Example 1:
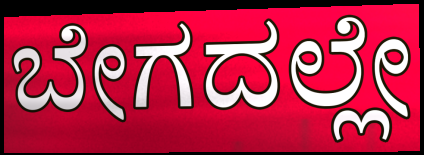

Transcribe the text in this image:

ಬೇಗದಲ್ಲೇ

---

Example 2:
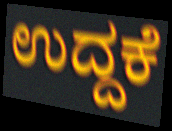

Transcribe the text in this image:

ಉದ್ದಕೆ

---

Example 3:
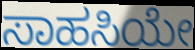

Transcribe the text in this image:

ಸಾಹಸಿಯೇ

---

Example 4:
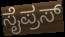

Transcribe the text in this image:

ಸೈಪ್ರಸ್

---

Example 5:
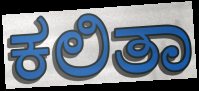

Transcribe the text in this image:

ಕಲಿತಾ